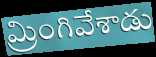
మ్రింగివేశాడు